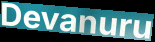
Devanuru